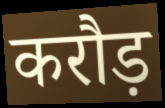
करौड़